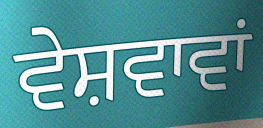
ਵੇਸ਼ਵਾਵਾਂ